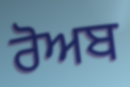
ਰੋਅਬ